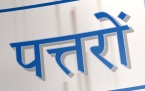
पत्तरों